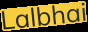
Lalbhai